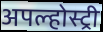
अपल्होस्ट्री